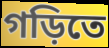
গড়িতে